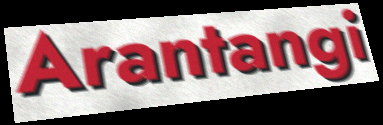
Arantangi